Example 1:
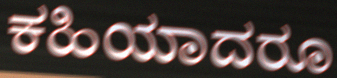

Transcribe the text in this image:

ಕಹಿಯಾದರೂ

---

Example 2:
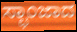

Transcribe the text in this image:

ಸ್ಟಾಂಜಾದ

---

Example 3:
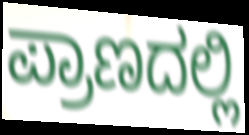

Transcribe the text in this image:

ಪ್ರಾಣದಲ್ಲಿ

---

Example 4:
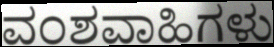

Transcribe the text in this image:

ವಂಶವಾಹಿಗಳು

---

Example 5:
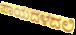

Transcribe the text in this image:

ಪಾಯದಳದಲಿ